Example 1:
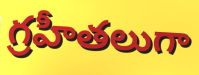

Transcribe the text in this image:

గ్రహీతలుగా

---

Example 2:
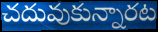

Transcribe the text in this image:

చదువుకున్నారట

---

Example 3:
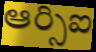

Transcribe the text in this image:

ఆర్సిఐ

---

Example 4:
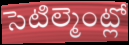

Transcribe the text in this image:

సెటిల్మెంట్లో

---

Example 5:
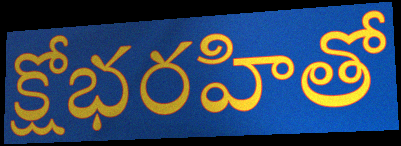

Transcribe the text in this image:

క్షోభరహితో